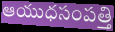
ఆయుధసంపత్తి